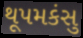
થૂપમકંસુ